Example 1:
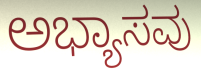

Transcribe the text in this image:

ಅಭ್ಯಾಸವು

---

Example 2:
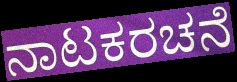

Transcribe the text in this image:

ನಾಟಕರಚನೆ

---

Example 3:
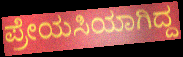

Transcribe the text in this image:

ಪ್ರೇಯಸಿಯಾಗಿದ್ದ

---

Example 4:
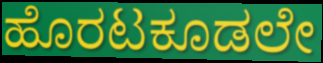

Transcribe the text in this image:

ಹೊರಟಕೂಡಲೇ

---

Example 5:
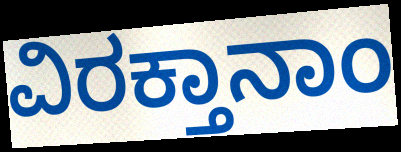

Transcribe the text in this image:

ವಿರಕ್ತಾನಾಂ